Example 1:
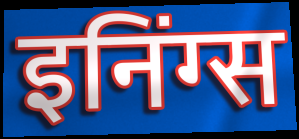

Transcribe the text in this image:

इनिंग्स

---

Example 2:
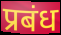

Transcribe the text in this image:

प्रबंध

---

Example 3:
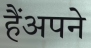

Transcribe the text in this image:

हैंअपने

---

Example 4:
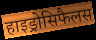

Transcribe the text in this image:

हाइड्रोसिफैलस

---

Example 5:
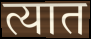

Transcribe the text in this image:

त्यात